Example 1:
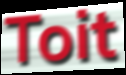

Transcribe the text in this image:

Toit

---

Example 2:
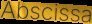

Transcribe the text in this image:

Abscissa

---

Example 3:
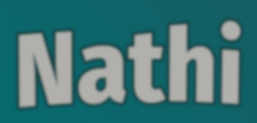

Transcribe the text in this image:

Nathi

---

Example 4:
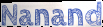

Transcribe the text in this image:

Nanand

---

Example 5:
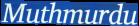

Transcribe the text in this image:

Muthmurdu